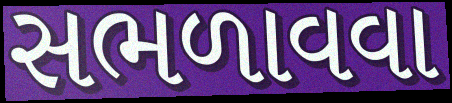
સભળાવવા